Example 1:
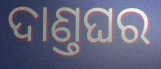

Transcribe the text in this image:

ଦାଣ୍ତଘର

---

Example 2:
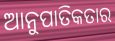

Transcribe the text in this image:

ଆନୁପାତିକତାର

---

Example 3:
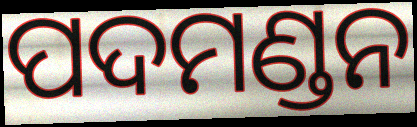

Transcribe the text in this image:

ପଦମଣ୍ଡନ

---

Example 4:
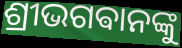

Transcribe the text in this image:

ଶ୍ରୀଭଗଵାନଙ୍କୁ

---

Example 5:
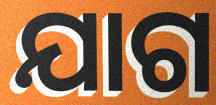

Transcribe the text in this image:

ଯାଗ